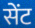
सेंट